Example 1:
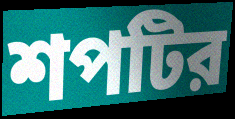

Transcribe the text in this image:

শপটির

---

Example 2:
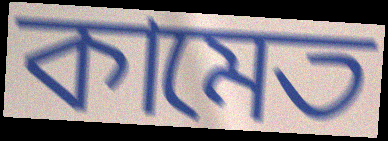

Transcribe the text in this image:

কামেত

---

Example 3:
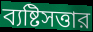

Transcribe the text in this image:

ব্যষ্টিসত্তার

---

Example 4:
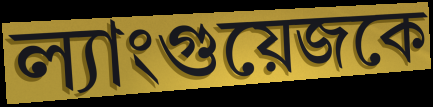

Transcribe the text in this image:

ল্যাংগুয়েজকে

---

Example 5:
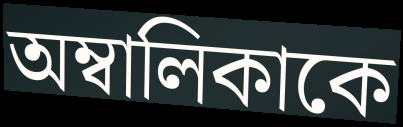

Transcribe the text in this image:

অম্বালিকাকে